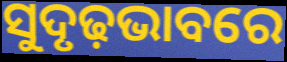
ସୁଦୃଢ଼ଭାବରେ